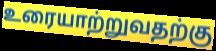
உரையாற்றுவதற்கு